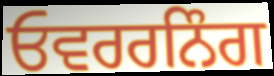
ਓਵਰਰਨਿੰਗ